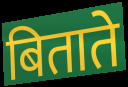
बिताते